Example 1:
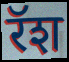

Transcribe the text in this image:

रॅश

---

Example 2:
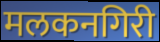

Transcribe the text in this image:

मलकनगिरी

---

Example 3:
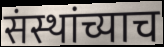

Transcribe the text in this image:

संस्थांच्याच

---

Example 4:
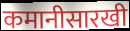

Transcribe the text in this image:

कमानीसारखी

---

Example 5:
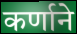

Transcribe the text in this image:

कर्णाने